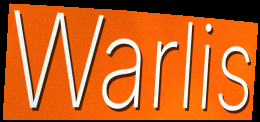
Warlis